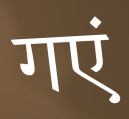
गएं